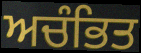
ਅਚੰਭਿਤ